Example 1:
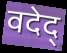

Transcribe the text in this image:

वदेद्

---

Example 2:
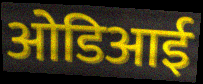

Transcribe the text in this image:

ओडिआई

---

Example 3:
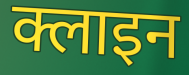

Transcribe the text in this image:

क्लाइन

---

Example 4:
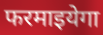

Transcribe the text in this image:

फरमाइयेगा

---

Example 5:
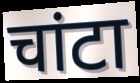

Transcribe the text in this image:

चांटा